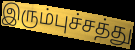
இரும்புச்சத்து